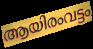
ആയിരംവട്ടം